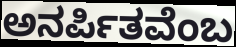
ಅನರ್ಪಿತವೆಂಬ